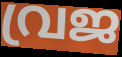
വ്രജ